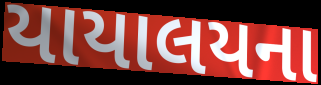
યાયાલયના